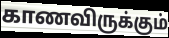
காணவிருக்கும்